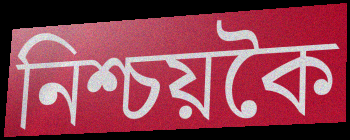
নিশ্চয়কৈ